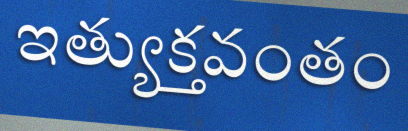
ఇత్యుక్తవంతం